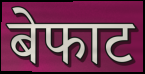
बेफाट